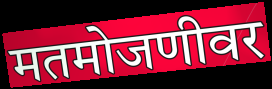
मतमोजणीवर